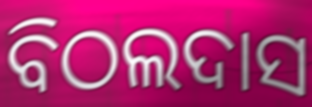
ବିଠଲଦାସ